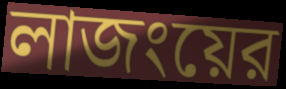
লাজংয়ের